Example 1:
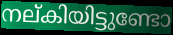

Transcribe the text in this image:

നല്കിയിട്ടുണ്ടോ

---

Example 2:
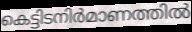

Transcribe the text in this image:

കെട്ടിടനിർമാണത്തിൽ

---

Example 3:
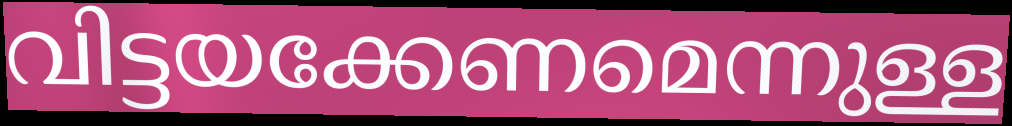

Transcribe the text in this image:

വിട്ടയക്കേണമെന്നുള്ള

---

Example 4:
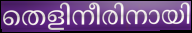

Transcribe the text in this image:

തെളിനീരിനായി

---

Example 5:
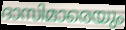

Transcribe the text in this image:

ദാസിമാരെയും